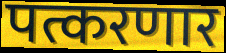
पत्करणार